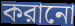
করানো